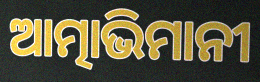
ଆତ୍ମାଭିମାନୀ